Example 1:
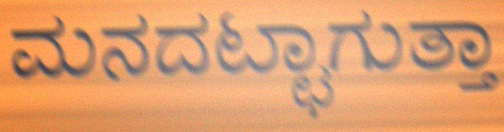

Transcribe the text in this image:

ಮನದಟ್ಟಾಗುತ್ತಾ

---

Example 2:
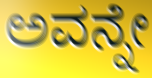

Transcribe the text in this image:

ಅವನ್ನೇ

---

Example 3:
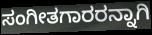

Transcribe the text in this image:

ಸಂಗೀತಗಾರರನ್ನಾಗಿ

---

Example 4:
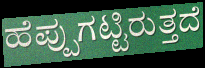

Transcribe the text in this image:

ಹೆಪ್ಪುಗಟ್ಟಿರುತ್ತದೆ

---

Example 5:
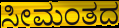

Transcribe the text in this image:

ಸೀಮಂತದ